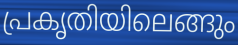
പ്രകൃതിയിലെങ്ങും